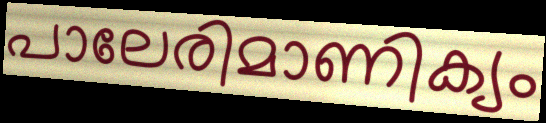
പാലേരിമാണിക്യം